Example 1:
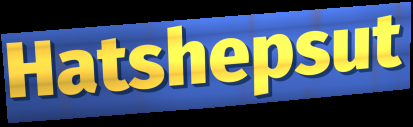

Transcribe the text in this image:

Hatshepsut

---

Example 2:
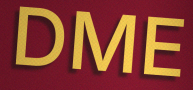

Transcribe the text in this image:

DME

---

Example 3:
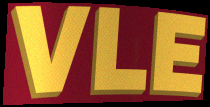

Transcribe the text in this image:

VLE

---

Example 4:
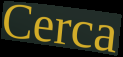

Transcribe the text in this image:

Cerca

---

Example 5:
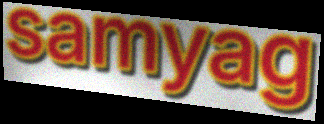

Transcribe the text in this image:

samyag